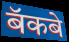
बॅकबे